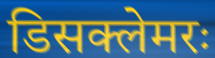
डिसक्लेमरः